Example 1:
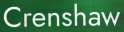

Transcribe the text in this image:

Crenshaw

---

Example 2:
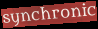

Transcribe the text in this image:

synchronic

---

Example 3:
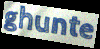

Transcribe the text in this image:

ghunte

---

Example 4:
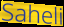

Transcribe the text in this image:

Saheli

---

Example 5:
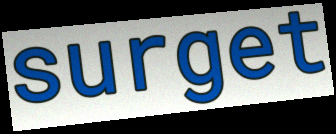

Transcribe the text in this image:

surget